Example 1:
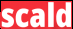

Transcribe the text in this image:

scald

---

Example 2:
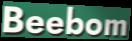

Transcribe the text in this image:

Beebom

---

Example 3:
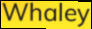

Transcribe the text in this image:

Whaley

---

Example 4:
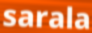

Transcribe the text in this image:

sarala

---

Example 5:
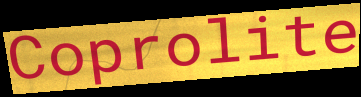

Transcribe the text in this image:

Coprolite